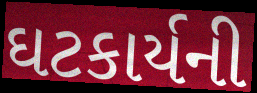
ઘટકાર્યની